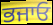
ਭਜਾਓ